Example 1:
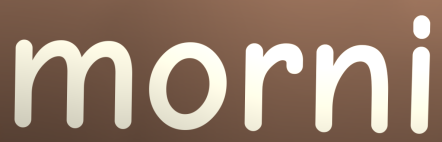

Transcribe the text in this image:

morni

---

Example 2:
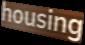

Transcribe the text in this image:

housing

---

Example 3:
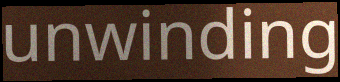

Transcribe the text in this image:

unwinding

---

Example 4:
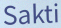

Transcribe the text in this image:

Sakti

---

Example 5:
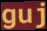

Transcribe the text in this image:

guj